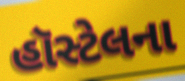
હૉસ્ટેલના